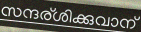
സന്ദര്ശിക്കുവാന്